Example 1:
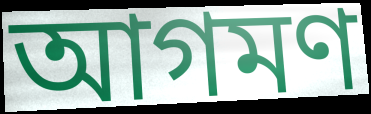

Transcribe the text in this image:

আগমণ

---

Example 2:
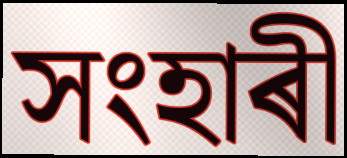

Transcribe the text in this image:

সংহাৰী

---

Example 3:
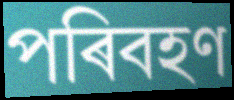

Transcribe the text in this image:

পৰিবহণ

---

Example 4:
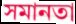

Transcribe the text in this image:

সমানতা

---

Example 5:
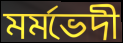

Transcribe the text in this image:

মৰ্মভেদী